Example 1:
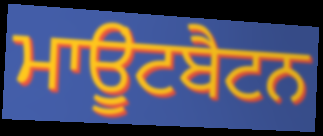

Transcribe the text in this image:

ਮਾਉੂਂਟਬੈਟਨ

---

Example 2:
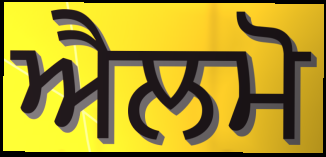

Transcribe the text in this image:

ਐਲਮੋ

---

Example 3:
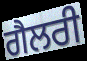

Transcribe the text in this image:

ਗੈਲਰੀ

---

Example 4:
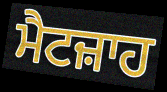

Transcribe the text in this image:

ਮੈਟਜ਼ਾਹ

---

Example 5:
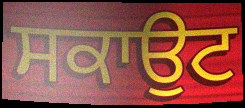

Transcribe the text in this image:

ਸਕਾਉਟ